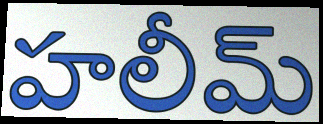
హలీమ్